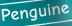
Penguine